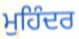
ਮੁਹਿੰਦਰ